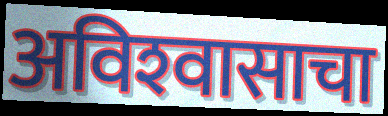
अविश्‍वासाचा